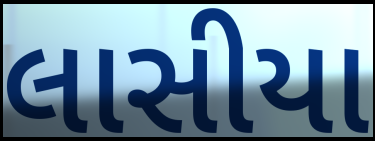
લાસીયા